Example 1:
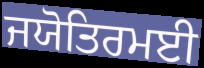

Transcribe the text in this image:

ਜਯੋਤਿਰਮਈ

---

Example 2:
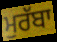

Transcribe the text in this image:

ਮੁਰੱਬਾ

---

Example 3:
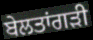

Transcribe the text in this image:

ਬੇਲਤਾਂਗੜੀ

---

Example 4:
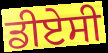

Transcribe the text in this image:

ਡੀਏਸੀ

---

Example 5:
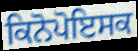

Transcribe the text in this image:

ਕਿਨੋਪੋਇਸਕ